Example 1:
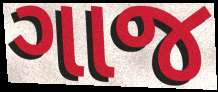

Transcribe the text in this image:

ગાજ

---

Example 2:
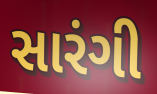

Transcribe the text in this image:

સારંગી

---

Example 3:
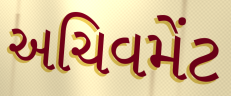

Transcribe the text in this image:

અચિવમેંટ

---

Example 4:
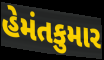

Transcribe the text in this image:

હેમંતકુમાર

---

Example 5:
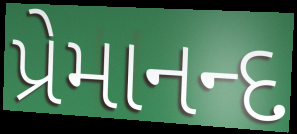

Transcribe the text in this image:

પ્રેમાનન્દ